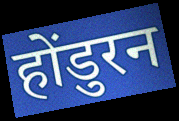
होंडुरन